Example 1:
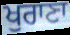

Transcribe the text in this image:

ਖੁਰਾਣਾ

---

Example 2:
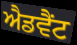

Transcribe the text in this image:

ਐਡਵੈਂਟ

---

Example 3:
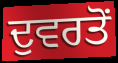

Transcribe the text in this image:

ਦੁਵਰਤੋਂ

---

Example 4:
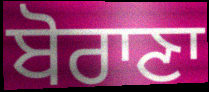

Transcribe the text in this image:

ਬੋਰਾਣਾ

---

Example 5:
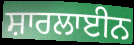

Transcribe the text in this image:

ਸ਼ਾਰਲਾਈਨ